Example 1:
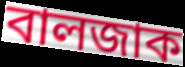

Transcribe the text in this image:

বালজাক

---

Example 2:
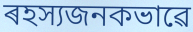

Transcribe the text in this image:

ৰহস্যজনকভাৱে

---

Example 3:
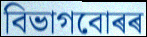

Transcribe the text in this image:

বিভাগবোৰৰ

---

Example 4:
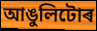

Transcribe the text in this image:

আঙুলিটোৰ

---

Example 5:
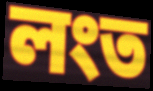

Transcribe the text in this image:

লংত